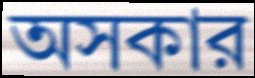
অসকার